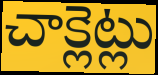
చాక్లెట్లు